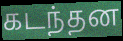
கடந்தன